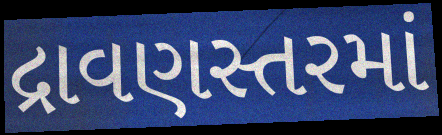
દ્રાવણસ્તરમાં